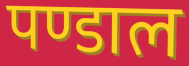
पण्डाल